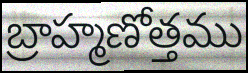
బ్రాహ్మణోత్తము